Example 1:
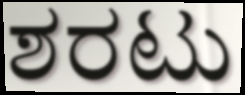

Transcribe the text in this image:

ಶರಟು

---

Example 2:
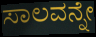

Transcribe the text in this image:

ಸಾಲವನ್ನೇ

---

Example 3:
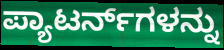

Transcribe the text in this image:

ಪ್ಯಾಟರ್ನ್‌ಗಳನ್ನು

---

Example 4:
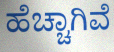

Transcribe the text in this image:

ಹೆಚ್ಚಾಗಿವೆ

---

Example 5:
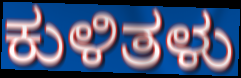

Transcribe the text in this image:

ಕುಳಿತಳು